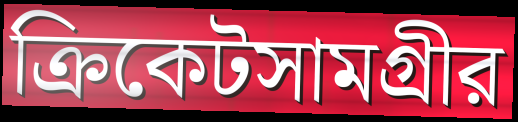
ক্রিকেটসামগ্রীর